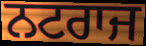
ਨਟਰਾਜ